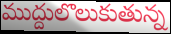
ముద్దులొలుకుతున్న